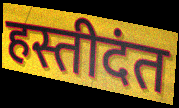
हस्तीदंत